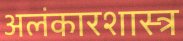
अलंकारशास्त्र